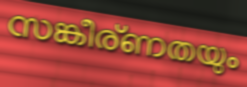
സങ്കീര്ണതയും